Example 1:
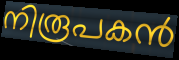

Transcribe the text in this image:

നിരൂപകൻ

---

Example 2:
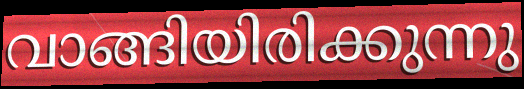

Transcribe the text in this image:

വാങ്ങിയിരിക്കുന്നു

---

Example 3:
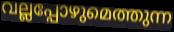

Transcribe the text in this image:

വല്ലപ്പോഴുമെത്തുന്ന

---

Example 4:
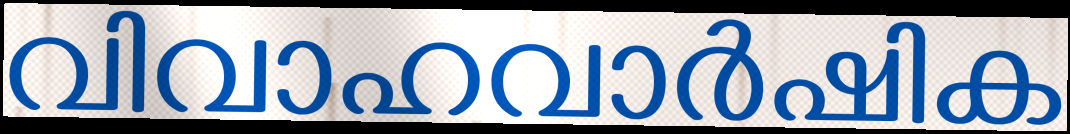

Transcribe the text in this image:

വിവാഹവാർഷിക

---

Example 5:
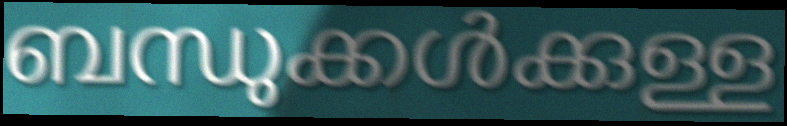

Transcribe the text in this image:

ബന്ധുക്കൾക്കുള്ള